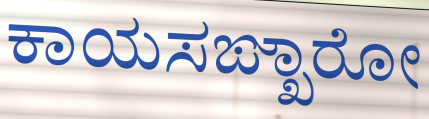
ಕಾಯಸಙ್ಖಾರೋ